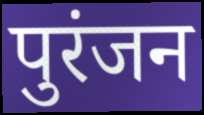
पुरंजन